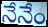
నేనేం